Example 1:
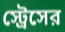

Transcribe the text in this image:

স্ট্রেসের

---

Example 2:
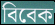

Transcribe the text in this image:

বিবেক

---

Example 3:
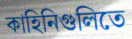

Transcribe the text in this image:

কাহিনিগুলিতে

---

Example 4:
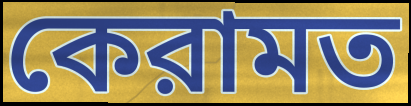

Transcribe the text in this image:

কেরামত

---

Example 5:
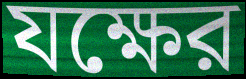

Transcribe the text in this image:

যক্ষের